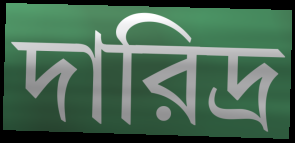
দারিদ্র